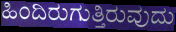
ಹಿಂದಿರುಗುತ್ತಿರುವುದು